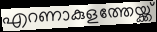
എറണാകുളത്തേയ്ക്ക്